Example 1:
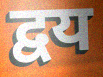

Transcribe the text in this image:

द्वय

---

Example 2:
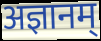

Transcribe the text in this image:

अज्ञानम्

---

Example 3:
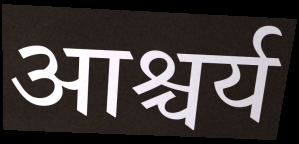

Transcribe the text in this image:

आश्चर्य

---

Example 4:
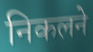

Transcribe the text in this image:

निकलने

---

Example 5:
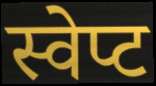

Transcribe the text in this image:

स्वेप्ट